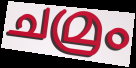
ചമ്രം